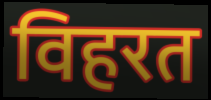
विहरत